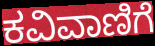
ಕವಿವಾಣಿಗೆ